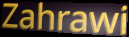
Zahrawi